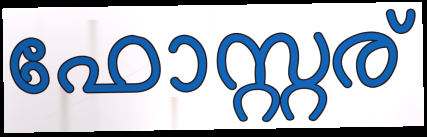
ഫോസ്റ്റര്